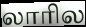
லாரில